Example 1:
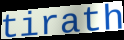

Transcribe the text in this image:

tirath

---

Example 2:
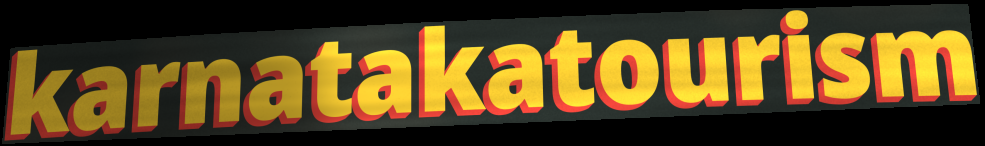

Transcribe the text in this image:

karnatakatourism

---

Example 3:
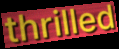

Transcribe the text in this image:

thrilled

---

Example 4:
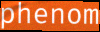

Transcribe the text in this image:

phenom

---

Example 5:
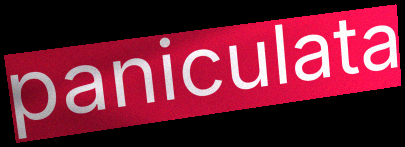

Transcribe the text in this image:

paniculata